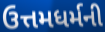
ઉત્તમધર્મની